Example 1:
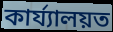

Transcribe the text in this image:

কাৰ্য্যালয়ত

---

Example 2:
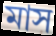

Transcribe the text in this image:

মাস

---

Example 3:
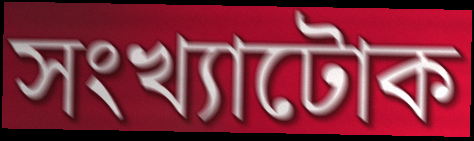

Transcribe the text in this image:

সংখ্যাটোক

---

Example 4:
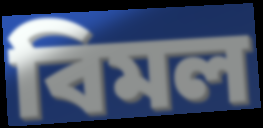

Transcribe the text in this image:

বিমল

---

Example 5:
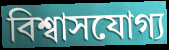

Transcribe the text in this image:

বিশ্বাসযোগ্য